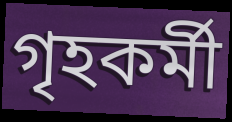
গৃহকর্মী